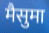
मैसुमा